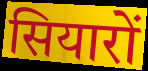
सियारों